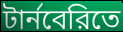
টার্নবেরিতে